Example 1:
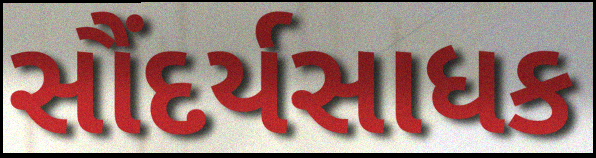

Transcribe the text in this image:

સૌંદર્યસાધક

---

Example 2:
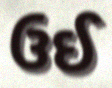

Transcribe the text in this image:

ઉઈ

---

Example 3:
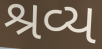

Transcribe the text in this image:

શ્રવ્ય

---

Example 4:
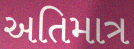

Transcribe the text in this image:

અતિમાત્ર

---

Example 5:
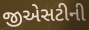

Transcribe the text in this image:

જીએસટીની